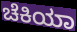
ಚೆಕಿಯಾ